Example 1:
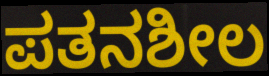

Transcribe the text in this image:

ಪತನಶೀಲ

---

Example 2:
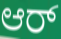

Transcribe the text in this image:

ಆರ್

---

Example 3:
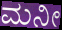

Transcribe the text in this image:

ಮನೀ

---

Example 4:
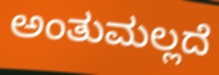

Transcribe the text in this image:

ಅಂತುಮಲ್ಲದೆ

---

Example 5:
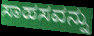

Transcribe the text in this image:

ಸಾಹಸವನ್ನು